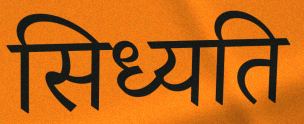
सिध्यति